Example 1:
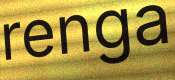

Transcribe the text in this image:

renga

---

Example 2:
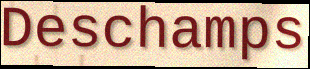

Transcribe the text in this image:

Deschamps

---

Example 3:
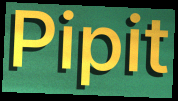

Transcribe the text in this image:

Pipit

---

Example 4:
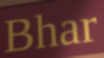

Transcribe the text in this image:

Bhar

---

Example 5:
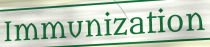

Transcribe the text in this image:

Immunization